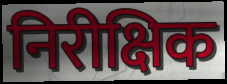
निरीक्षिक